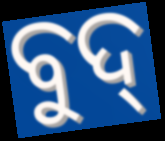
ବୁଦ୍